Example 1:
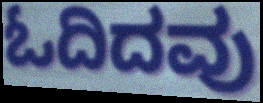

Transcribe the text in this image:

ಓದಿದವು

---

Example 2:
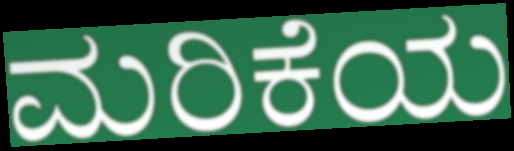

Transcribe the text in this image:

ಮರಿಕೆಯ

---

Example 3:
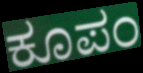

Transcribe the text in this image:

ಕೂಪಂ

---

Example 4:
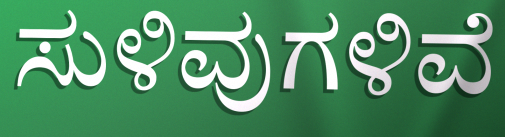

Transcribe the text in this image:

ಸುಳಿವುಗಳಿವೆ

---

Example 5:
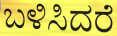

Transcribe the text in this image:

ಬಳಿಸಿದರೆ